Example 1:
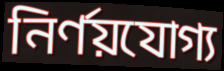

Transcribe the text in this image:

নির্ণয়যোগ্য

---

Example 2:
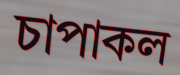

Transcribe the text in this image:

চাপাকল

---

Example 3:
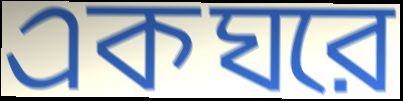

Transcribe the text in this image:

একঘরে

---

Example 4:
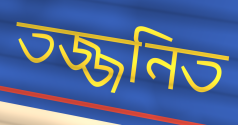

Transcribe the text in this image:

তজ্জনিত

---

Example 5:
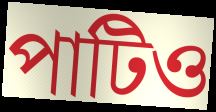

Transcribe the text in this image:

পাটিও